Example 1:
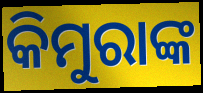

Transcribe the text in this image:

କିମୁରାଙ୍କ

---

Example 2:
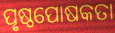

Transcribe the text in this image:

ପୃଷ୍ଠପୋଷକତା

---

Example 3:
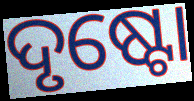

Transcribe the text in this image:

ଦୃଷ୍ଟୋ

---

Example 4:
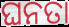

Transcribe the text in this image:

ଘନତା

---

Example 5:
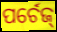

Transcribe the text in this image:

ପର୍ଚେଜ୍